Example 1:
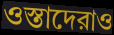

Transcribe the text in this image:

ওস্তাদেরাও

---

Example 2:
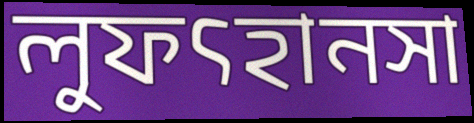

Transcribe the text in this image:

লুফৎহানসা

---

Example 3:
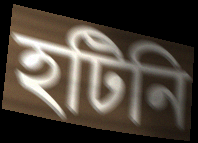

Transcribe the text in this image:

হটিনি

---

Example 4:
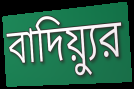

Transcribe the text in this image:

বাদিয়্যুর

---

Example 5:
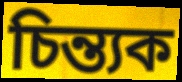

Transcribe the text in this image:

চিন্ত্যক